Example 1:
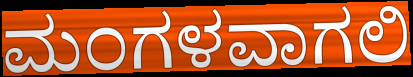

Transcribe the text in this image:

ಮಂಗಳವಾಗಲಿ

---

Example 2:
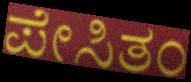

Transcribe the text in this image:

ಪೇಸಿತಂ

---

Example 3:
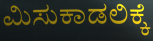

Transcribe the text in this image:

ಮಿಸುಕಾಡಲಿಕ್ಕೆ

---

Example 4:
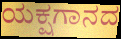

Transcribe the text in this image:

ಯಕ್ಷಗಾನದ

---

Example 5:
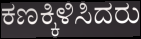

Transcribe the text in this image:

ಕಣಕ್ಕಿಳಿಸಿದರು